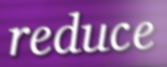
reduce